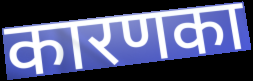
कारणका